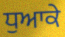
ਧੁਆਕੇ